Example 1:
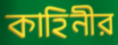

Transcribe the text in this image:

কাহিনীর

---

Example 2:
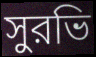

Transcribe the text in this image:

সুরভি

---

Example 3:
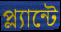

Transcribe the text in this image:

প্ল্যান্টে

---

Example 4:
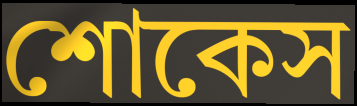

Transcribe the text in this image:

শোকেস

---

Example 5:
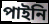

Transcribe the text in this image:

পাইনি